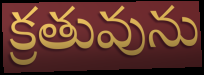
క్రతువును